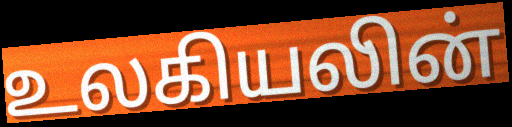
உலகியலின்